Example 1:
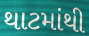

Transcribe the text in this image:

થાટમાંથી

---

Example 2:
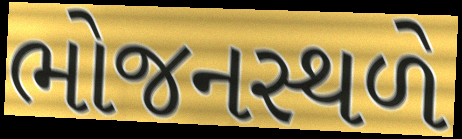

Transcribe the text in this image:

ભોજનસ્થળે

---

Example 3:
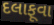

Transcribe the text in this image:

દલાફૂવા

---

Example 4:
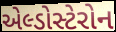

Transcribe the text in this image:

એલ્ડોસ્ટેરોન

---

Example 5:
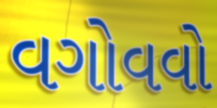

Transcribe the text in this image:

વગોવવો